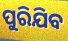
ପୁରିଯିବ